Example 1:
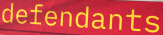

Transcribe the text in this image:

defendants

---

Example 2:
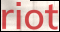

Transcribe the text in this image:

riot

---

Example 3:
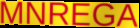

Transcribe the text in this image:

MNREGA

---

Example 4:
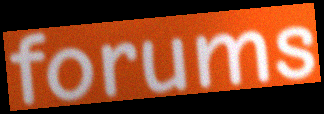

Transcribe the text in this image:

forums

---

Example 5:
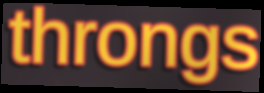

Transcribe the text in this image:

throngs